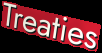
Treaties